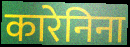
कारेनिना